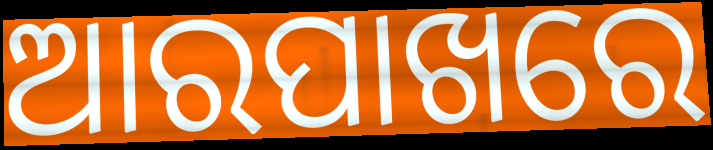
ଆରପାଖରେ